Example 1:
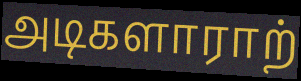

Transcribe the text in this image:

அடிகளாராற்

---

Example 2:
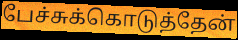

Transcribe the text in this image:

பேச்சுக்கொடுத்தேன்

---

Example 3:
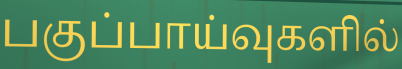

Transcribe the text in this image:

பகுப்பாய்வுகளில்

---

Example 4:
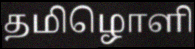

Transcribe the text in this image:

தமிழொளி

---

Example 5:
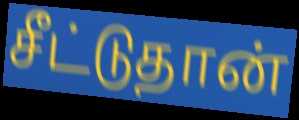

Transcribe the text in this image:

சீட்டுதான்